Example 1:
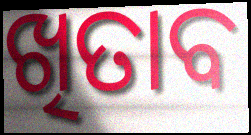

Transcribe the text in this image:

ଖିତାବ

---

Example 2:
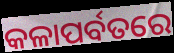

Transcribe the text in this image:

କଳାପର୍ବତରେ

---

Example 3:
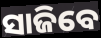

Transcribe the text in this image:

ସାଜିବେ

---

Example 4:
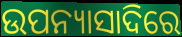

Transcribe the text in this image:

ଉପନ୍ୟାସାଦିରେ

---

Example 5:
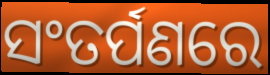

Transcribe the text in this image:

ସଂତର୍ପଣରେ